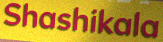
Shashikala